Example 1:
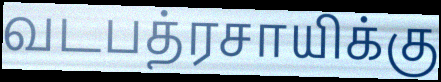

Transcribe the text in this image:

வடபத்ரசாயிக்கு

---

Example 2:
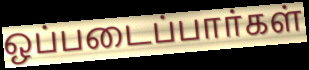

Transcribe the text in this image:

ஒப்படைப்பார்கள்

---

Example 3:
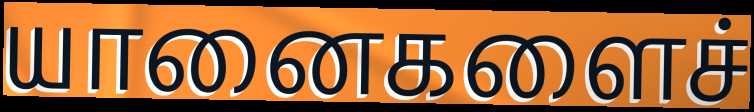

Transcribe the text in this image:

யானைகளைச்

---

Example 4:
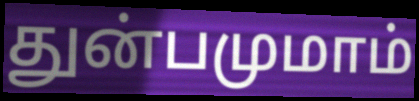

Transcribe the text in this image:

துன்பமுமாம்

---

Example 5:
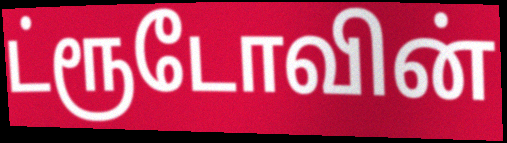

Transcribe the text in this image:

ட்ரூடோவின்